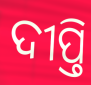
ଦୀପ୍ତି